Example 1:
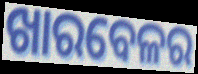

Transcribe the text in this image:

ଖାରବେଳର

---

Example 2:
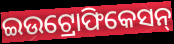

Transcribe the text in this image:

ଇଉଟ୍ରୋଫିକେସନ୍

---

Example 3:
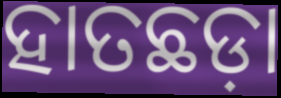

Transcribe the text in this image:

ହାତଛଡ଼ା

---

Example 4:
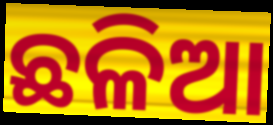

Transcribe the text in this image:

ଛଳିଆ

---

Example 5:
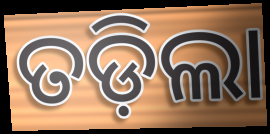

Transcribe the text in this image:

ତଡ଼ିଲା